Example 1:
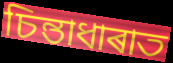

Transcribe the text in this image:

চিন্তাধাৰাত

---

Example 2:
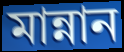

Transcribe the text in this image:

মান্নান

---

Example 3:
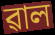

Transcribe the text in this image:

ৱাল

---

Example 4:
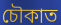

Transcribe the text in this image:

চৌকাত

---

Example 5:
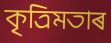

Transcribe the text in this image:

কৃত্ৰিমতাৰ